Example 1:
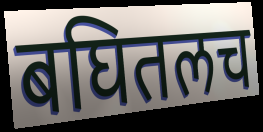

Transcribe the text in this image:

बघितलच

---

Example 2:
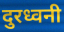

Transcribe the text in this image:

दुरध्वनी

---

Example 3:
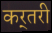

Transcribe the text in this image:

कर्तरी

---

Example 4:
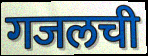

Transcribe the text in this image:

गजलची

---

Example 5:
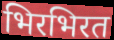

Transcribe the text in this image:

भिरभिरत